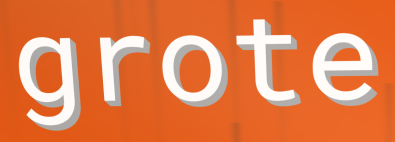
grote